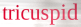
tricuspid